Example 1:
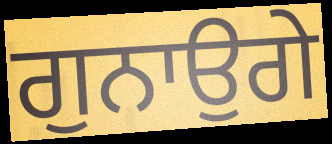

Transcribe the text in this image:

ਗੁਨਾਉਗੇ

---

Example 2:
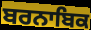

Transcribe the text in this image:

ਬਰਨਾਬਿਕ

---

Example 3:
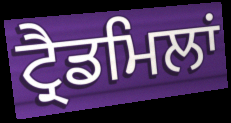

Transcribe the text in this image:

ਟ੍ਰੈਡਮਿਲਾਂ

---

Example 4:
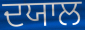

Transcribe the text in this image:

ਦਯਾਲ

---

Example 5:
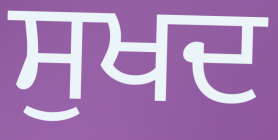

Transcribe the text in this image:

ਸੁਖਦ